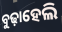
ବୁଢ଼ାହେଲି